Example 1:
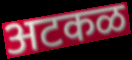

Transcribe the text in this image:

अटकळ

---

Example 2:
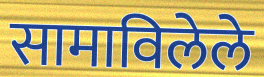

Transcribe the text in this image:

सामाविलेले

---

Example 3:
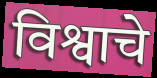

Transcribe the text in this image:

विश्वाचे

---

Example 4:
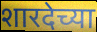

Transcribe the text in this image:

शारदेच्या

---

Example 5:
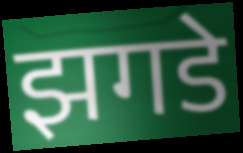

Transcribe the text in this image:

झगडे